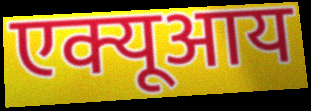
एक्यूआय